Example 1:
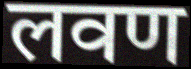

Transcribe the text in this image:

लवण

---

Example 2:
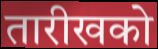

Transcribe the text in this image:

तारीखको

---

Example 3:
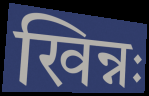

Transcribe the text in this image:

खिन्नः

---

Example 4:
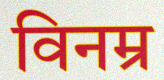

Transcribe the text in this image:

विनम्र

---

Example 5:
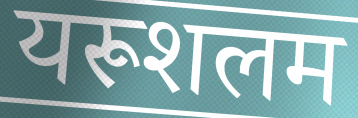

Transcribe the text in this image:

यरूशलम